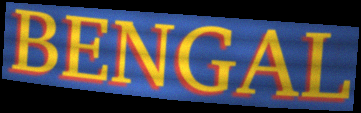
BENGAL